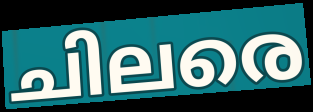
ചിലരെ